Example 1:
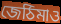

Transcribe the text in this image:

জেঠিমাও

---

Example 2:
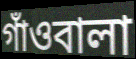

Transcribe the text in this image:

গাঁওবালা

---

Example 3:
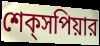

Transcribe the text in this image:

শেক্‌সপিয়ার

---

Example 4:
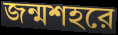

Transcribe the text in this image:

জন্মশহরে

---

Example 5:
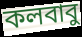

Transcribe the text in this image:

কলবাবু